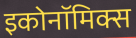
इकोनॉमिक्स